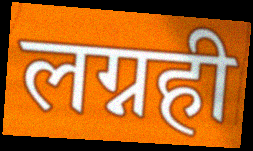
लग्नही